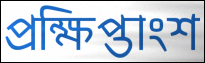
প্রক্ষিপ্তাংশ